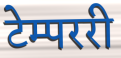
टेम्पररी